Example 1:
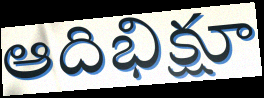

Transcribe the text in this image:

ఆదిభిక్షూ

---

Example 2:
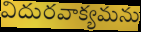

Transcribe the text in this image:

విదురవాక్యమను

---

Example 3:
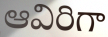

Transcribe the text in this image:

ఆవిరిగా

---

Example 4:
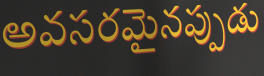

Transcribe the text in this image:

అవసరమైనప్పుడు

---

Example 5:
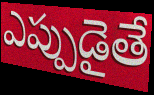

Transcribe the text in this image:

ఎప్పుడైతే